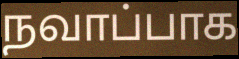
நவாப்பாக